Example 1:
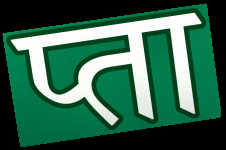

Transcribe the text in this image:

प्ता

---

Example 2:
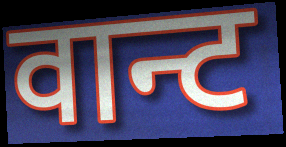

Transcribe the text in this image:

वान्ट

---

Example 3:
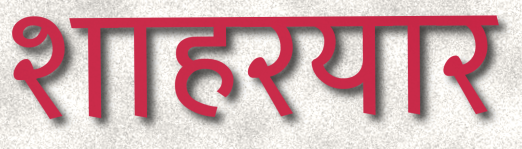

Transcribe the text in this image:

शाहरयार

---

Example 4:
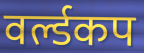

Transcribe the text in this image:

वर्ल्डकप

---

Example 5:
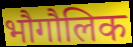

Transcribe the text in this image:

भौगौलिक